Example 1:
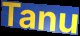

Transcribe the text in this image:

Tanu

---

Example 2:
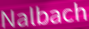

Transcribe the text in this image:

Nalbach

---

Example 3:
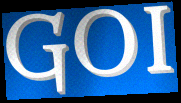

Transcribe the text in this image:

GOI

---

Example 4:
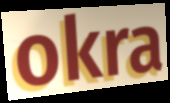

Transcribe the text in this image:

okra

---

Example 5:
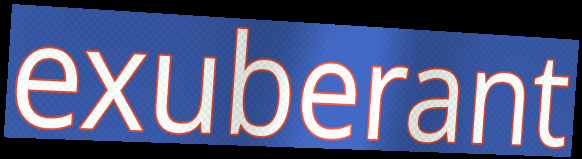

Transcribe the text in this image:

exuberant